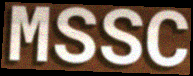
MSSC